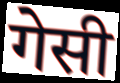
गेसी